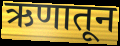
ऋणातून